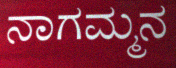
ನಾಗಮ್ಮನ